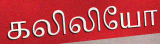
கலிலியோ